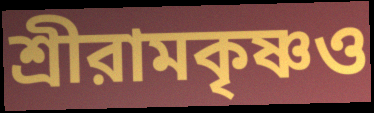
শ্রীরামকৃষ্ণও